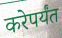
करेपर्यंत